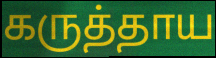
கருத்தாய